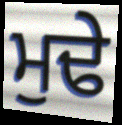
ਮੁਢੇ